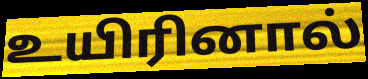
உயிரினால்